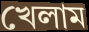
খেলাম